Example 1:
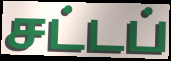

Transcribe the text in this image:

சட்டப்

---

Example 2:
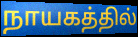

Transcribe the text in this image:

நாயகத்தில்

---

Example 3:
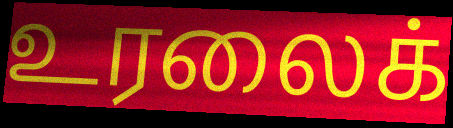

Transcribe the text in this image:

உரலைக்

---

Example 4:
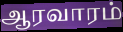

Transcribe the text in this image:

ஆரவாரம்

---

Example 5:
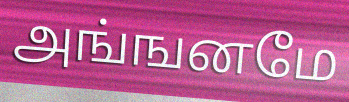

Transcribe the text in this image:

அங்ஙனமே